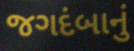
જગદંબાનું